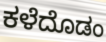
ಕಳೆದೊಡಂ